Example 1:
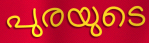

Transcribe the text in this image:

പുരയുടെ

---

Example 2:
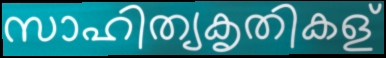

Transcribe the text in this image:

സാഹിത്യകൃതികള്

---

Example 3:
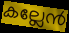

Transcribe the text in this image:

കല്ലേൻ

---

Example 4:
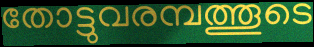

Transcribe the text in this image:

തോട്ടുവരമ്പത്തൂടെ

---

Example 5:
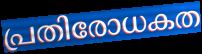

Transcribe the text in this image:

പ്രതിരോധകത